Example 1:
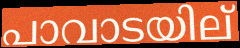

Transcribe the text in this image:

പാവാടയില്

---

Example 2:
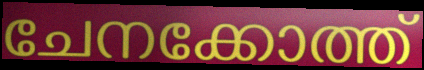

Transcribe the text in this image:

ചേനക്കോത്ത്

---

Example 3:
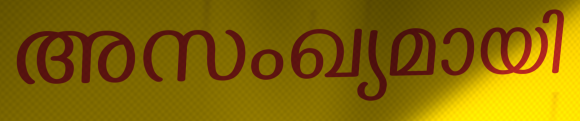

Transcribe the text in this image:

അസംഖ്യമായി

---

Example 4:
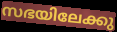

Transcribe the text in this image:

സഭയിലേക്കു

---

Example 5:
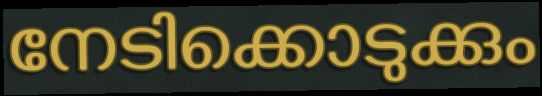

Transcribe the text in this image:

നേടിക്കൊടുക്കും